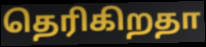
தெரிகிறதா